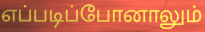
எப்படிப்போனாலும்